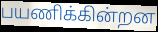
பயணிக்கின்றன